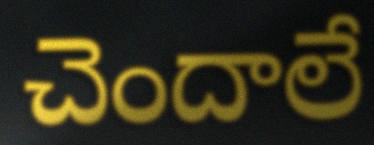
చెందాలే